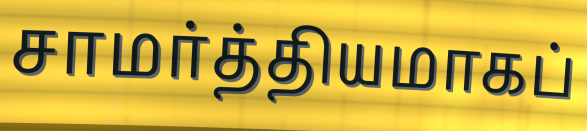
சாமர்த்தியமாகப்